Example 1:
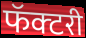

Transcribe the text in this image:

फॅक्‍टरी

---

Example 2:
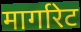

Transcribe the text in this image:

मार्गारेट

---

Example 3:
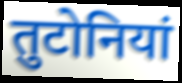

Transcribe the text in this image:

तुटोनियां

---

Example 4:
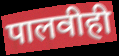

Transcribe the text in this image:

पालवीही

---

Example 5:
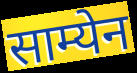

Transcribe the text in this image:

साम्येन